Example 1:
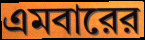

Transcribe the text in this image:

এমবারের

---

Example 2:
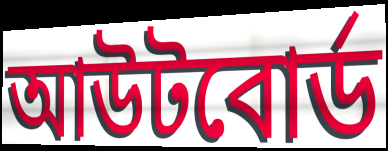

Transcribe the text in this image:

আউটবোর্ড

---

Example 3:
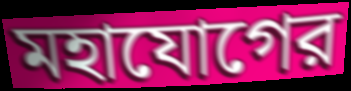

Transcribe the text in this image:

মহাযোগের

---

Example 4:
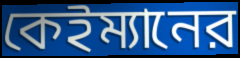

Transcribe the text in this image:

কেইম্যানের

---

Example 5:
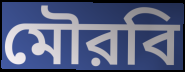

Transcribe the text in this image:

মৌরবি